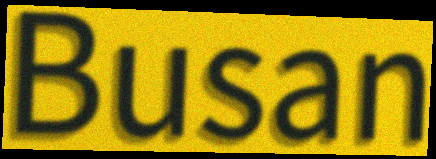
Busan